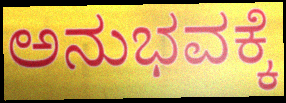
ಅನುಭವಕ್ಕೆ